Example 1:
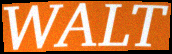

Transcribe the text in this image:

WALT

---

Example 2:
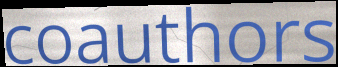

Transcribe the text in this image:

coauthors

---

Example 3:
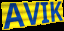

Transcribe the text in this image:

AVIK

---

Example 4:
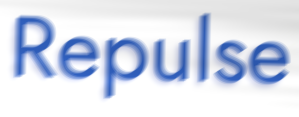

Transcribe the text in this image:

Repulse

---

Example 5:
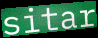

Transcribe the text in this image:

sitar